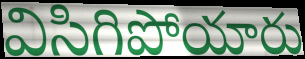
విసిగిపోయారు